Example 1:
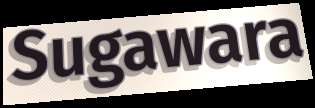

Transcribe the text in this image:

Sugawara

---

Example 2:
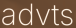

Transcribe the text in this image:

advts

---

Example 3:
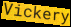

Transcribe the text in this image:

Vickery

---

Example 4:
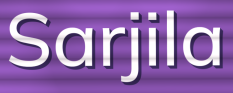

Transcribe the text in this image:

Sarjila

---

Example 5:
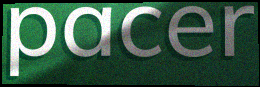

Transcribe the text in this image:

pacer